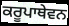
ਕਰੂਪਾਥੇਵਨ